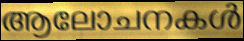
ആലോചനകൾ